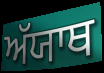
ਅੱਯਾਥ